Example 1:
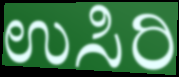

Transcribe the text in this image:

ಉಸಿರಿ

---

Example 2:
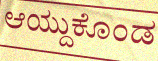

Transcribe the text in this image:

ಆಯ್ದುಕೊಂಡ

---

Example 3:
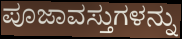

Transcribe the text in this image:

ಪೂಜಾವಸ್ತುಗಳನ್ನು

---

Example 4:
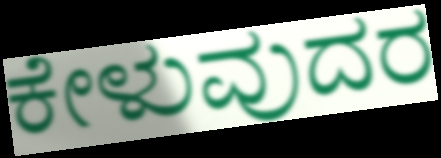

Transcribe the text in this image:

ಕೇಳುವುದರ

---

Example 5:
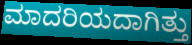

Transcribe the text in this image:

ಮಾದರಿಯದಾಗಿತ್ತು